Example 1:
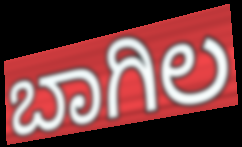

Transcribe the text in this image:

ಬಾಗಿಲ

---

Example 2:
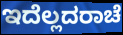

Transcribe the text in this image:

ಇದೆಲ್ಲದರಾಚೆ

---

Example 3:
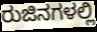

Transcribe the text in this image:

ರುಜಿನಗಳಲ್ಲಿ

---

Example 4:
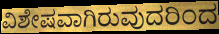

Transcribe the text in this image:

ವಿಶೇಷವಾಗಿರುವುದರಿಂದ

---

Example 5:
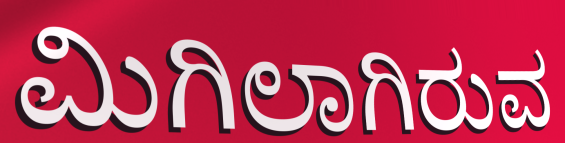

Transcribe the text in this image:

ಮಿಗಿಲಾಗಿರುವ